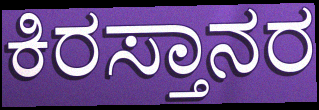
ಕಿರಸ್ತಾನರ